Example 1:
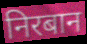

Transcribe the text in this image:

निरबान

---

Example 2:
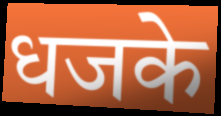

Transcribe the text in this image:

धजके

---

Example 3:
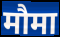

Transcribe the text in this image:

मौमा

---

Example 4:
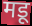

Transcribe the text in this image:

मडू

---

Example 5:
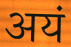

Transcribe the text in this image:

अयं